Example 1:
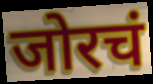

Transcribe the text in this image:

जोरचं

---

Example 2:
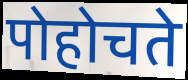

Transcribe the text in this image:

पोहोचते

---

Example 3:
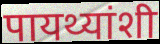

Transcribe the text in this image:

पायथ्यांशी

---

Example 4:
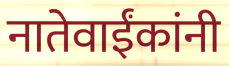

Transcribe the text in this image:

नातेवाईंकांनी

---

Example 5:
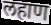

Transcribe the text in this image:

लहाण